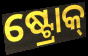
ଷ୍ଟ୍ରୋକ୍